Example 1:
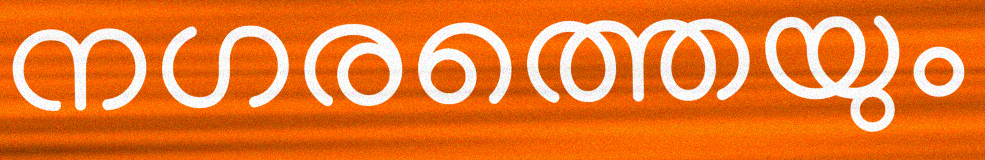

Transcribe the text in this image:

നഗരത്തെയും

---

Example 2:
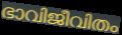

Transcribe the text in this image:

ഭാവിജീവിതം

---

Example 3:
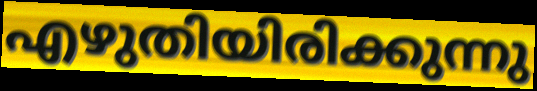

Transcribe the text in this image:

എഴുതിയിരിക്കുന്നു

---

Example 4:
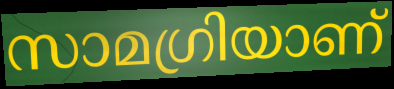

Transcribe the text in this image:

സാമഗ്രിയാണ്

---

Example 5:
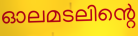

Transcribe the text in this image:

ഓലമടലിന്റെ